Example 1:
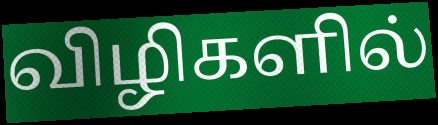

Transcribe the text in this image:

விழிகளில்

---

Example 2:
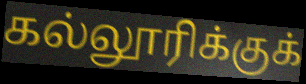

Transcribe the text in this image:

கல்லூரிக்குக்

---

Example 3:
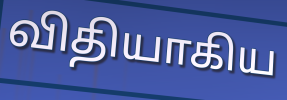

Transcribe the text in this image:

விதியாகிய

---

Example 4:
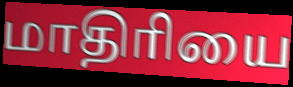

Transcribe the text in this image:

மாதிரியை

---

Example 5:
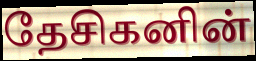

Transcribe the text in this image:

தேசிகனின்